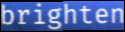
brighten